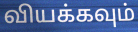
வியக்கவும்